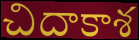
చిదాకాశ